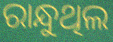
ରାନ୍ଧୁଥିଲ